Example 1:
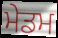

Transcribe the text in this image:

ਮੇਡਮ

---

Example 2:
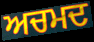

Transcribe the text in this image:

ਅਚਮਦ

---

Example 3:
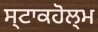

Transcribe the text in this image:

ਸ੍ਟਾਕਹੋਲ੍ਮ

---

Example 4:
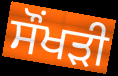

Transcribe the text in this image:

ਸੌਂਖੜੀ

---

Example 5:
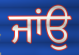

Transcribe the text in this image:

ਜਾਂਉ